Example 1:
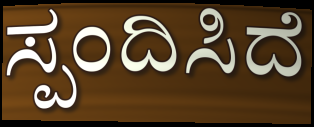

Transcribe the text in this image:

ಸ್ಪಂದಿಸಿದೆ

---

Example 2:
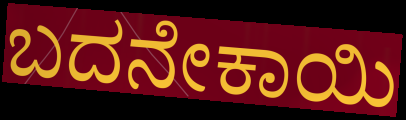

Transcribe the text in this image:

ಬದನೇಕಾಯಿ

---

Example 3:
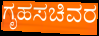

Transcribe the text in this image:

ಗೃಹಸಚಿವರ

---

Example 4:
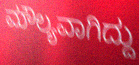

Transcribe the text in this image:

ಮೌಲ್ಯವಾಗಿದ್ದು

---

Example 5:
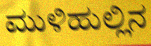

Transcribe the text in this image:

ಮುಳಿಹುಲ್ಲಿನ